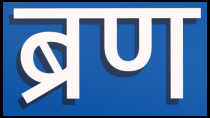
ब्रण